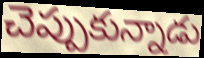
చెప్పుకున్నాడు